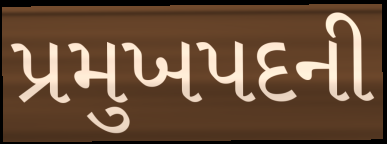
પ્રમુખપદની